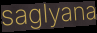
saglyana